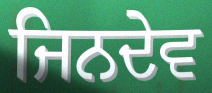
ਜਿਨਦੇਵ